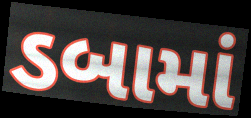
ડબામાં